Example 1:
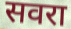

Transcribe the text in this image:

सवरा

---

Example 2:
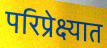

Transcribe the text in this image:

परिप्रेक्ष्यात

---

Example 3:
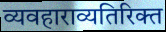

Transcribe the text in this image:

व्यवहाराव्यतिरिक्त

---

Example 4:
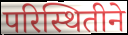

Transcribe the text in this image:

परिस्थितीने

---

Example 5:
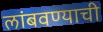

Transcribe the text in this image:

लांबवण्याची